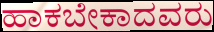
ಹಾಕಬೇಕಾದವರು